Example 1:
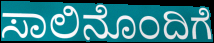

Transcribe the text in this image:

ಸಾಲಿನೊಂದಿಗೆ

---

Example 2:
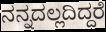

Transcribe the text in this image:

ನನ್ನದಲ್ಲದಿದ್ದರೆ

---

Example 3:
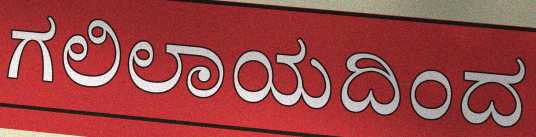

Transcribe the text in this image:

ಗಲಿಲಾಯದಿಂದ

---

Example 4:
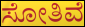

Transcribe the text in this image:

ಸೋತಿವೆ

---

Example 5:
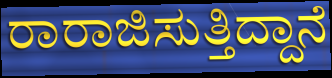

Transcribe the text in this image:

ರಾರಾಜಿಸುತ್ತಿದ್ದಾನೆ